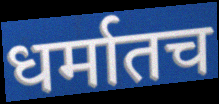
धर्मातच